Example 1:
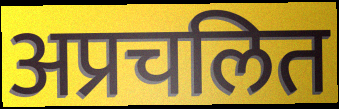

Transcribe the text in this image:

अप्रचलित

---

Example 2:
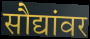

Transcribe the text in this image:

सौद्यांवर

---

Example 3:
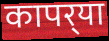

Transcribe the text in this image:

कापर्‍या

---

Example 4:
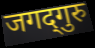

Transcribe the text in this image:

जगद्‍गुरु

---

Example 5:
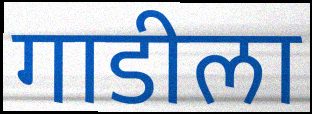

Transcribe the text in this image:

गाडीला